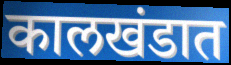
कालखंडात